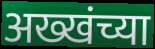
अख्खंच्या